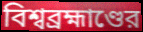
বিশ্বব্রহ্মাণ্ডের